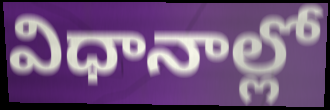
విధానాల్లో